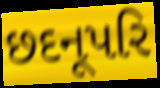
છદનૂપરિ